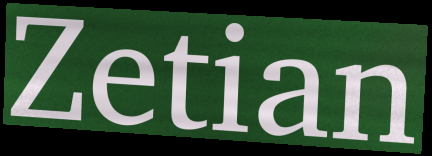
Zetian